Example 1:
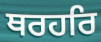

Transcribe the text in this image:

ਥਰਹਰਿ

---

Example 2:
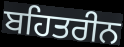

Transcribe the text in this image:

ਬਹਿਤਰੀਨ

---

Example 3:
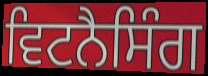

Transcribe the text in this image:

ਵਿਟਨੈਸਿੰਗ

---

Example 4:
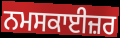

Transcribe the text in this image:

ਨਮਸਕਾਈਜ਼ਰ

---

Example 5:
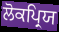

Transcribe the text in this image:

ਲੋਕਪ੍ਰਿਯ